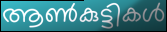
ആൺകുട്ടികൾ